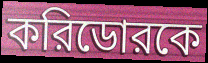
করিডোরকে